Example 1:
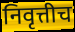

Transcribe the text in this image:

निवृत्तीच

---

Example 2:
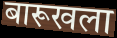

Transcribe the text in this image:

बारूखला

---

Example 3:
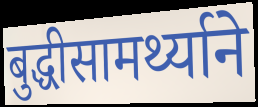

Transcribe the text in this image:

बुद्धीसामर्थ्याने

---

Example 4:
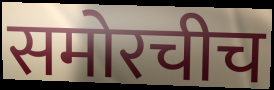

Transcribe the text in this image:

समोरचीच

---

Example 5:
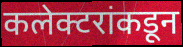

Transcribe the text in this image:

कलेक्टरांकडून